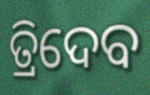
ତ୍ରିଦେବ